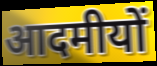
आदमीयों